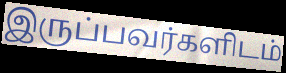
இருப்பவர்களிடம்